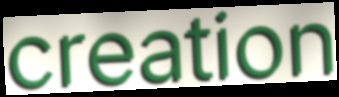
creation